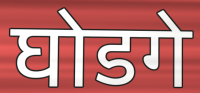
घोडगे